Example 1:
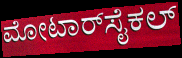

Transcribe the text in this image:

ಮೋಟಾರ್‌ಸೈಕಲ್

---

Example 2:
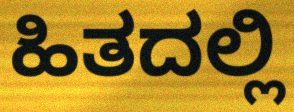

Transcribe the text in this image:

ಹಿತದಲ್ಲಿ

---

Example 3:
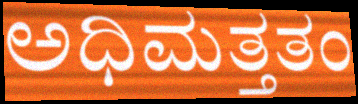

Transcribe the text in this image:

ಅಧಿಮತ್ತತಂ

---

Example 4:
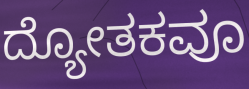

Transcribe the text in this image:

ದ್ಯೋತಕವೂ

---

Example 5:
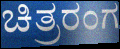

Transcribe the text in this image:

ಚಿತ್ರರಂಗ